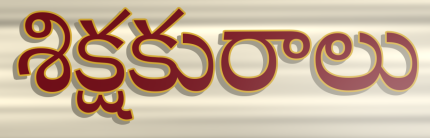
శిక్షకురాలు